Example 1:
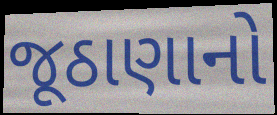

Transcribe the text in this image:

જૂઠાણાનો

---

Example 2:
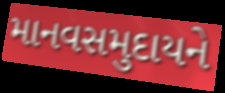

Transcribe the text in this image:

માનવસમુદાયને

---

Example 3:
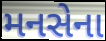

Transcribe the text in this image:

મનસેના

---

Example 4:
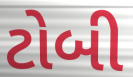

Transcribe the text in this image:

ટોબી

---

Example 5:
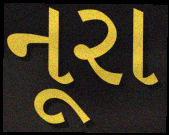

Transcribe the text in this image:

નૂરા